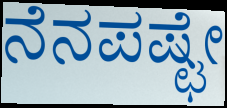
ನೆನಪಷ್ಟೇ